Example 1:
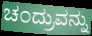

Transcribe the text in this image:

ಚಂದ್ರುವನ್ನು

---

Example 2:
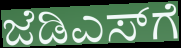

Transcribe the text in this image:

ಜೆಡಿಎಸ್‌ಗೆ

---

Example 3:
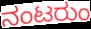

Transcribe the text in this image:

ನಂಟರುಂ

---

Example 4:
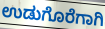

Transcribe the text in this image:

ಉಡುಗೊರೆಗಾಗಿ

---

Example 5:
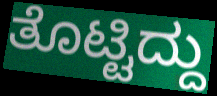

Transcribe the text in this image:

ತೊಟ್ಟಿದ್ದು